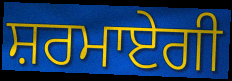
ਸ਼ਰਮਾਏਗੀ